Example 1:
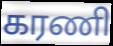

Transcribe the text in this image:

கரணி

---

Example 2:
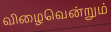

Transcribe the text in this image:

விழைவென்றும்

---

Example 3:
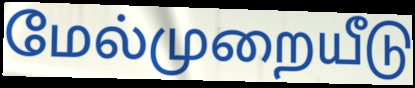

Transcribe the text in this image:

மேல்முறையீடு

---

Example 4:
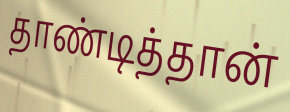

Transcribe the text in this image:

தாண்டித்தான்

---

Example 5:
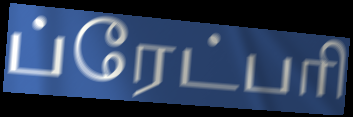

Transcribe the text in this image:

ப்ரேட்பரி